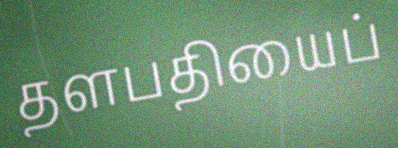
தளபதியைப்